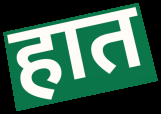
हात